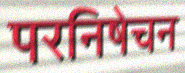
परनिषेचन